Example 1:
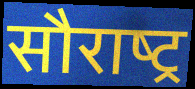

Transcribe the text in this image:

सौराष्ट्र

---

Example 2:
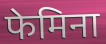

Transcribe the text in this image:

फेमिना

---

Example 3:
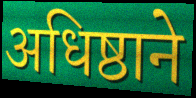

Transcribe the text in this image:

अधिष्ठाने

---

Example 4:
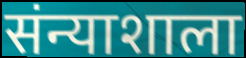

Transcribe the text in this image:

संन्याशाला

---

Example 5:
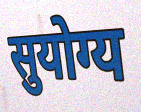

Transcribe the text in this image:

सुयोग्य